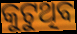
କୁଟୁଥିବ